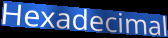
Hexadecimal